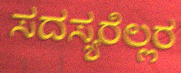
ಸದಸ್ಯರೆಲ್ಲರ